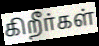
கிறீர்கள்